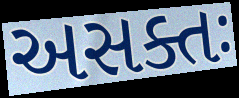
અસક્તઃ